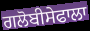
ਗਲੋਬੀਸੇਫਾਲਾ